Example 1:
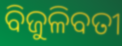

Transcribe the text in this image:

ବିଜୁଳିବତୀ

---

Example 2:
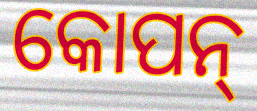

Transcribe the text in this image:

କୋପନ୍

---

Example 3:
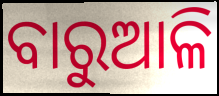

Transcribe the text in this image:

ବାରୁଆଳି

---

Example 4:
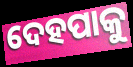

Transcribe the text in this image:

ଦେହପାକୁ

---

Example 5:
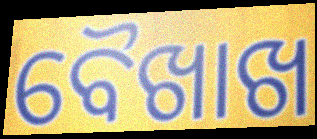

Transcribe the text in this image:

ବୈଖାଖ